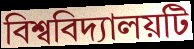
বিশ্ববিদ্যালয়টি